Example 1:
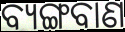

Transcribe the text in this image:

ବ୍ୟଙ୍ଗବାଣ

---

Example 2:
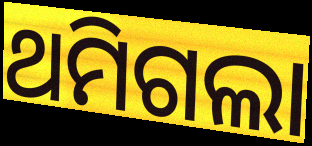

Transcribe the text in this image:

ଥମିଗଲା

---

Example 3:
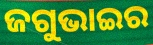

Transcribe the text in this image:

ଜଗୁଭାଇର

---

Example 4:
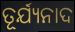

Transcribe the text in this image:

ତୂର୍ଯ୍ୟନାଦ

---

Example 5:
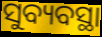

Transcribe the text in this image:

ସୁବ୍ୟବସ୍ଥା